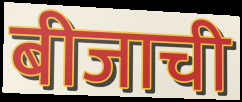
बीजाची